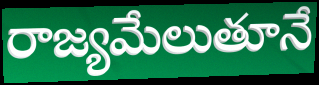
రాజ్యమేలుతూనే